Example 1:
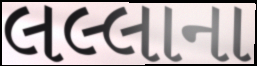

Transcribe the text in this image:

લલ્લાના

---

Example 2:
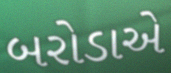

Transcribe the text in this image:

બરોડાએ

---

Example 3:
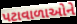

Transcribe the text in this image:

પટાવાળાઓને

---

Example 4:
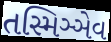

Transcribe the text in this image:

તસ્મિઞ્ઞેવ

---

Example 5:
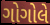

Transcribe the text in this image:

ગોગોલે